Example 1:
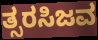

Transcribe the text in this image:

ತ್ಸರಸಿಜವ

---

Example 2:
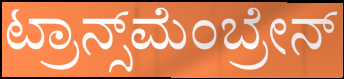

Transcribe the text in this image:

ಟ್ರಾನ್ಸ್‌ಮೆಂಬ್ರೇನ್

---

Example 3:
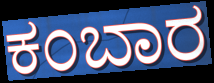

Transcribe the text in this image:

ಕಂಬಾರ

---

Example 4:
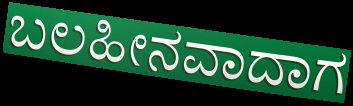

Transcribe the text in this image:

ಬಲಹೀನವಾದಾಗ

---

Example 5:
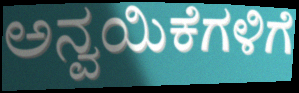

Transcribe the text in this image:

ಅನ್ವಯಿಕೆಗಳಿಗೆ